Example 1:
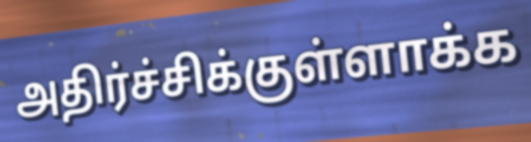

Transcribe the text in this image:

அதிர்ச்சிக்குள்ளாக்க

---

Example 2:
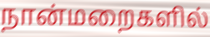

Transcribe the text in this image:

நான்மறைகளில்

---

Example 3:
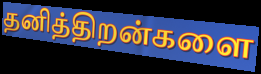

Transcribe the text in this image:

தனித்திறன்களை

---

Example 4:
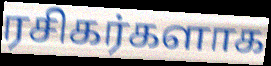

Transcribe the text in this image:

ரசிகர்களாக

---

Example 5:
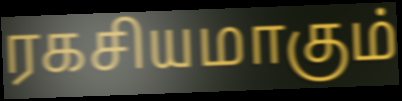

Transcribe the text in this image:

ரகசியமாகும்